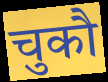
चुकौ